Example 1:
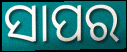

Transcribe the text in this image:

ସାପର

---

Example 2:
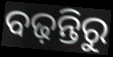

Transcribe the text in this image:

ବଢ଼ନ୍ତିରୁ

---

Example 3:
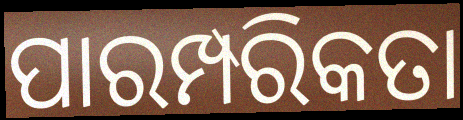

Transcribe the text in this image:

ପାରମ୍ପରିକତା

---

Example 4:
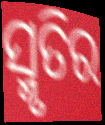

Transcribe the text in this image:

ସ୍ମୃତିର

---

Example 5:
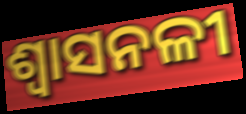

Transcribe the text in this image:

ଶ୍ଵାସନଳୀ